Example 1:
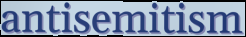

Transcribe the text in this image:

antisemitism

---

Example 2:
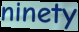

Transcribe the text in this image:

ninety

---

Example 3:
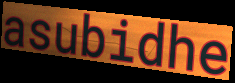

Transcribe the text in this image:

asubidhe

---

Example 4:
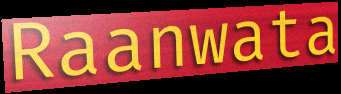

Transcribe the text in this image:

Raanwata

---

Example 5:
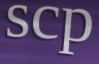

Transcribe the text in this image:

scp